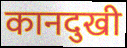
कानदुखी